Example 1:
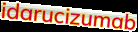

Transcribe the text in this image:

idarucizumab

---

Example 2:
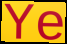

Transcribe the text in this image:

Ye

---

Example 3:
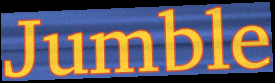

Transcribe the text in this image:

Jumble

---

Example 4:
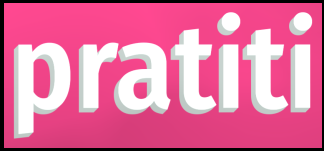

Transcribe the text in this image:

pratiti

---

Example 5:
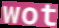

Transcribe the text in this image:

wot